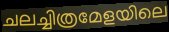
ചലച്ചിത്രമേളയിലെ